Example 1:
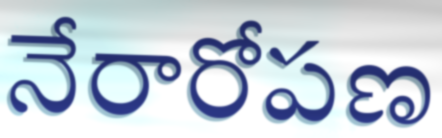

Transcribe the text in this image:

నేరారోపణ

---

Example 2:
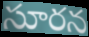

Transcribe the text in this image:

సూరన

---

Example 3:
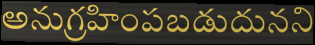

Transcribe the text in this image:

అనుగ్రహింపబడుదునని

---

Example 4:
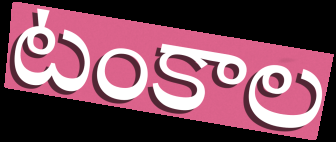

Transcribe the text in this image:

టంకాల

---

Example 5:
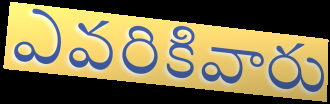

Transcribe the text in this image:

ఎవరికివారు